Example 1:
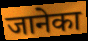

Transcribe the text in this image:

जानेका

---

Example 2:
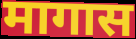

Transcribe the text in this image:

मागास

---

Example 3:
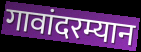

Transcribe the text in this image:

गावांदरम्यान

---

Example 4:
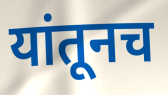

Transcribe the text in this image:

यांतूनच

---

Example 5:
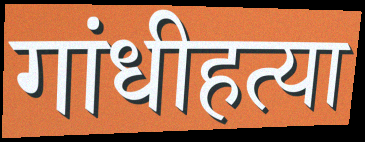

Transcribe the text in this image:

गांधीहत्या